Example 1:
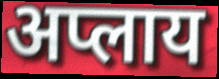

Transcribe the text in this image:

अप्लाय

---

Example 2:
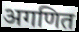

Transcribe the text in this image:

अगणित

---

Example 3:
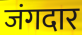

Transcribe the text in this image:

जंगदार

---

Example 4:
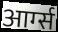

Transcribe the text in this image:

आर्ग्स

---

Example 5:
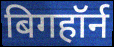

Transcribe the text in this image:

बिगहॉर्न